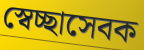
স্বেচ্ছাসেবক